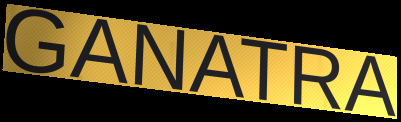
GANATRA